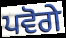
ਪਵੋਗੇ